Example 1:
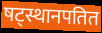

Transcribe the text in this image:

षट्स्थानपतित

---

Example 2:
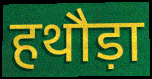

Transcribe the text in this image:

हथौड़ा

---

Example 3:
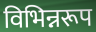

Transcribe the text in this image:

विभिन्नरूप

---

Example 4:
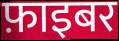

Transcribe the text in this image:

फ़ाइबर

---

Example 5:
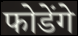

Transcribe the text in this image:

फोडेंगे